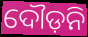
ଦୌଡ଼ନି